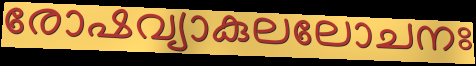
രോഷവ്യാകുലലോചനഃ